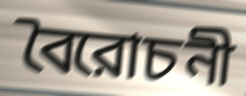
বৈরোচনী